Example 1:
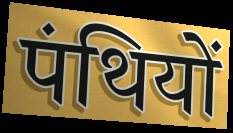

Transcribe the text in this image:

पंथियों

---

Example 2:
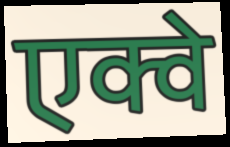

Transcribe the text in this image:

एक्वे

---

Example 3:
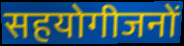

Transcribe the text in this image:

सहयोगीजनों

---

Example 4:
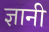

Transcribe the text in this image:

ज्ञानी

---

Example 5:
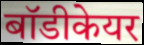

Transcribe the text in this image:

बॉडीकेयर